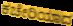
ಕಚೇರಿಯಾದ